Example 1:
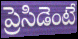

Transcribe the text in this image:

ప్రెసిడెంటే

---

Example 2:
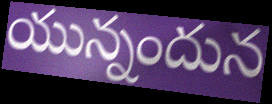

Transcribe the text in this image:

యున్నందున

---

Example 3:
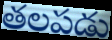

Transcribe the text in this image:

తలపడు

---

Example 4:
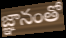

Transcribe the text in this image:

జ్ఞానంతో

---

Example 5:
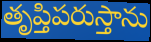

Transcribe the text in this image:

తృప్తిపరుస్తాను